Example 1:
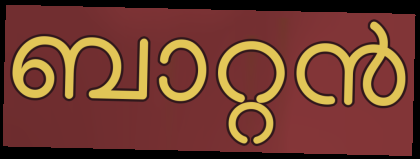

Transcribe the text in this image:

ബാറ്റൻ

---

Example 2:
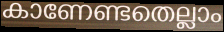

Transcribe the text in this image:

കാണേണ്ടതെല്ലാം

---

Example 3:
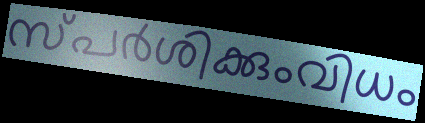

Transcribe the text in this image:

സ്പർശിക്കുംവിധം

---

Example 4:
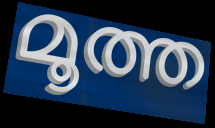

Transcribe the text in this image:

മൂത്ത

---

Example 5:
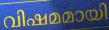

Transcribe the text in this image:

വിഷമമായി